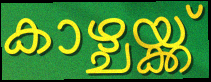
കാഴ്ചയ്ക്ക്